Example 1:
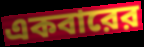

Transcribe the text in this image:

একবারের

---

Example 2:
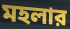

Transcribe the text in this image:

মহলার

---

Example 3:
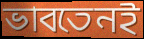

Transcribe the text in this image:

ভাবতেনই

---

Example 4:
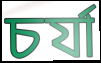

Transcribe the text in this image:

চর্যা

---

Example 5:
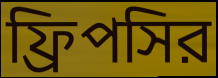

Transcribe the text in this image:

ফ্রিপসির